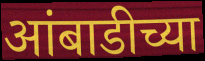
आंबाडीच्या